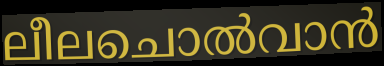
ലീലചൊൽവാൻ